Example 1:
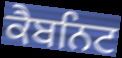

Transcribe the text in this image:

ਕੈਬਨਿਟ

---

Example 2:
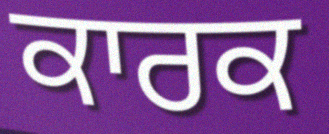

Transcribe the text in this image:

ਕਾਰਕ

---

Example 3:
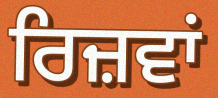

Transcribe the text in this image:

ਰਿਜ਼ਵਾਂ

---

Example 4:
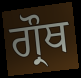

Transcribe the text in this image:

ਗ੍ਰੌਥ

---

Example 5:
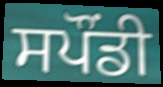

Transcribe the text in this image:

ਸਪੌਂਡੀ